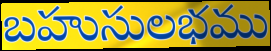
బహుసులభము